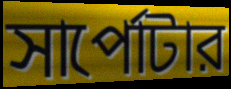
সার্পোটার